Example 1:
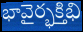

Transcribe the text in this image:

భావైర్భక్తిభి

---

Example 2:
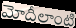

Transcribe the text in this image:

మోదీలాంటి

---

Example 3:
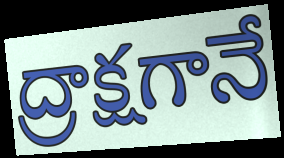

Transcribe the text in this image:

ద్రాక్షగానే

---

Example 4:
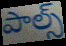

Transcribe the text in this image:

పాల్స్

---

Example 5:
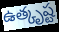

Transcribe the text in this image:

ఉత్కృష్ట